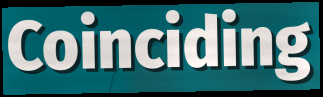
Coinciding